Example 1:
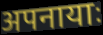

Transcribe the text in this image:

अपनायाः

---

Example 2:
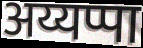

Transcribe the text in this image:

अय्यप्पा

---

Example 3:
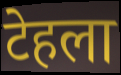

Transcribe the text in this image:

टेहला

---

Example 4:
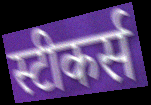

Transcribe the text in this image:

स्टीकर्स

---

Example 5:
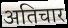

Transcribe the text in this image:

अतिचार